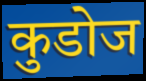
कुडोज